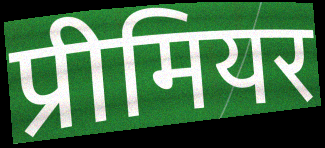
प्रीमियर